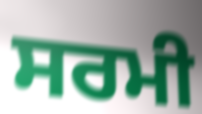
ਸਰਮੀ